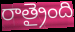
రాత్రైంది